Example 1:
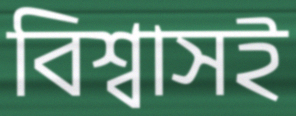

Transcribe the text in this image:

বিশ্বাসই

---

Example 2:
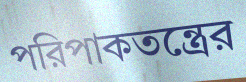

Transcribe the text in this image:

পরিপাকতন্ত্রের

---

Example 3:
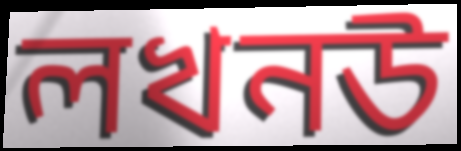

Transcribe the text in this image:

লখনউ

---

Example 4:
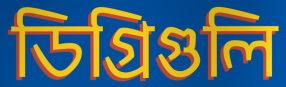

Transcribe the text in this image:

ডিগ্রিগুলি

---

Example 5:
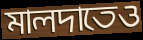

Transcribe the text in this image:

মালদাতেও